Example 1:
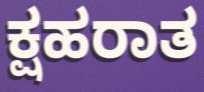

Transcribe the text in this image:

ಕ್ಷಹರಾತ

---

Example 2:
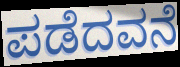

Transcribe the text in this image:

ಪಡೆದವನೆ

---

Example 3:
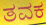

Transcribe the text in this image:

ತವಕ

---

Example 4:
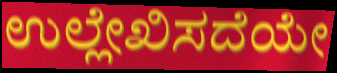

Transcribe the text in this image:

ಉಲ್ಲೇಖಿಸದೆಯೇ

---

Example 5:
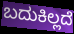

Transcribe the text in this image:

ಬದುಕಿಲ್ಲದೆ